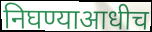
निघण्याआधीच